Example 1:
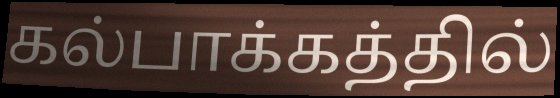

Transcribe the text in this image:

கல்பாக்கத்தில்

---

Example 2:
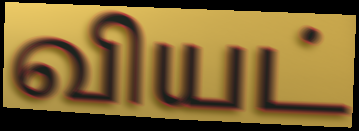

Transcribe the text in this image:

வியட்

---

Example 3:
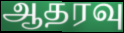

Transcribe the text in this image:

ஆதரவு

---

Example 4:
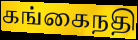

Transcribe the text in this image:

கங்கைநதி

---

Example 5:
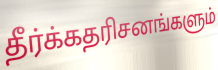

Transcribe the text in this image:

தீர்க்கதரிசனங்களும்